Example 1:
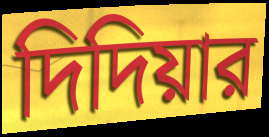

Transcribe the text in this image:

দিদিয়ার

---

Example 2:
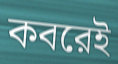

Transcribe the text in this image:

কবরেই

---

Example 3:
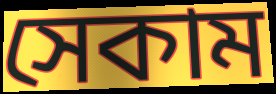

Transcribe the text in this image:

সেকাম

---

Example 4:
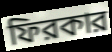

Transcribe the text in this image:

ফিরকার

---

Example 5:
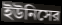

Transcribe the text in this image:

ইউনিসের